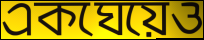
একঘেয়েও